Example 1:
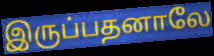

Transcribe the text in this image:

இருப்பதனாலே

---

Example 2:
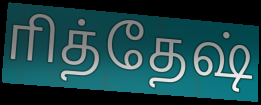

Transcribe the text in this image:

ரித்தேஷ்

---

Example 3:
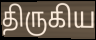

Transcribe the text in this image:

திருகிய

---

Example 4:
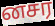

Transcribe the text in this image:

னசர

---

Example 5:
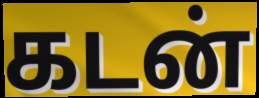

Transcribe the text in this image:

கடன்